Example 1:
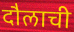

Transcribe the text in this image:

दौलाची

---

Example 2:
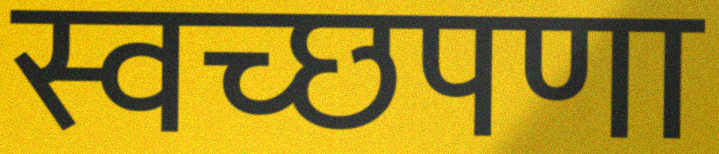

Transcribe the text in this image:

स्वच्छपणा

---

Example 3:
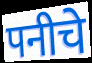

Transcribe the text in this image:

पनीचे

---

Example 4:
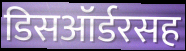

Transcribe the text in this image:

डिसऑर्डरसह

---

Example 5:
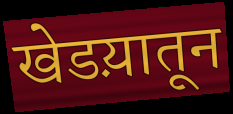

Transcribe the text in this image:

खेडय़ातून